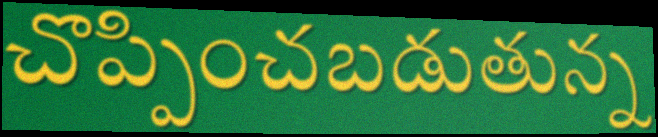
చొప్పించబడుతున్న